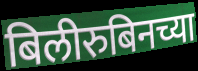
बिलीरुबिनच्या